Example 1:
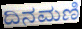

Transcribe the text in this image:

ದಿನಮಣಿ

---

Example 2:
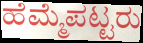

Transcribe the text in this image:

ಹೆಮ್ಮೆಪಟ್ಟರು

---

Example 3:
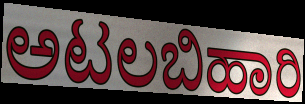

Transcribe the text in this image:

ಅಟಲಬಿಹಾರಿ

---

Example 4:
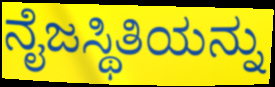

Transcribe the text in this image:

ನೈಜಸ್ಥಿತಿಯನ್ನು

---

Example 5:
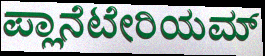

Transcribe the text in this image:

ಪ್ಲಾನೆಟೇರಿಯಮ್